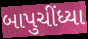
બાપુચીંધ્યા